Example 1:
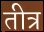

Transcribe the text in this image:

तीत्र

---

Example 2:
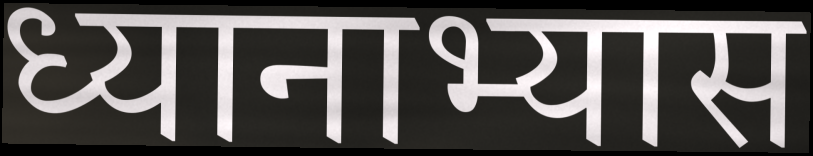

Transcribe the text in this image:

ध्यानाभ्यास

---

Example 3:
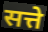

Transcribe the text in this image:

सत्ते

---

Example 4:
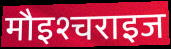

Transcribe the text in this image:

मौइश्चराइज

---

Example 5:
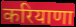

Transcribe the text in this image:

करियाणा